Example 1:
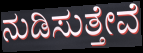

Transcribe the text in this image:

ನುಡಿಸುತ್ತೇವೆ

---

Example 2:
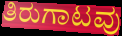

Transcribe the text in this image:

ತಿರುಗಾಟವು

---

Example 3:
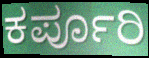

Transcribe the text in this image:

ಕರ್ಪೂರಿ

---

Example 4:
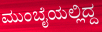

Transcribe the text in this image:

ಮುಂಬೈಯಲ್ಲಿದ್ದ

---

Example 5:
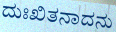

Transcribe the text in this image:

ದುಃಖಿತನಾದನು